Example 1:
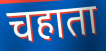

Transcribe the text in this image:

चहाता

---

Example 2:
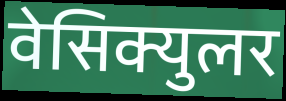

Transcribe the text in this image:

वेसिक्युलर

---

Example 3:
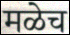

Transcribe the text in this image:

मळेच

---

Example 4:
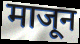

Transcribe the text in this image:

माजून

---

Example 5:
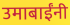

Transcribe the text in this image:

उमाबाईंनी